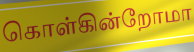
கொள்கின்றோமா